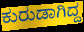
ಕುರುಡಾಗಿದ್ದ